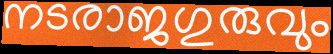
നടരാജഗുരുവും